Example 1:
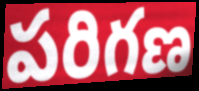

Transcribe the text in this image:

పరిగణ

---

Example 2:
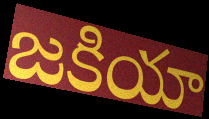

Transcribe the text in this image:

జకియా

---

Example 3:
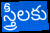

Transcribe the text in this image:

స్త్రీలకు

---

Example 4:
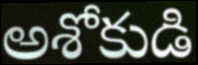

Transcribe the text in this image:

అశోకుడి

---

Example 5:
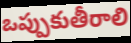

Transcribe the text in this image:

ఒప్పుకుతీరాలి